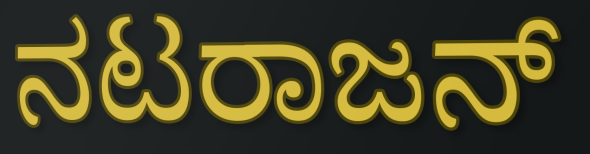
ನಟರಾಜನ್